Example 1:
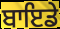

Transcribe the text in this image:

ਬਾਇਡੇ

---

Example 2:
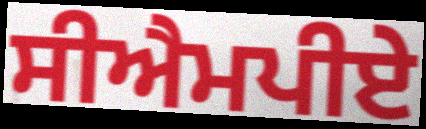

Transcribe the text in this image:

ਸੀਐਮਪੀਏ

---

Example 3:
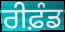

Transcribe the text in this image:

ਰੀਫ਼ੰਡ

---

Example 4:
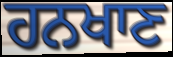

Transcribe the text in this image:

ਹਨਖਾਣ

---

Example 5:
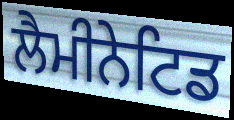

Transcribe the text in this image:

ਲੈਮੀਨੇਟਿਡ